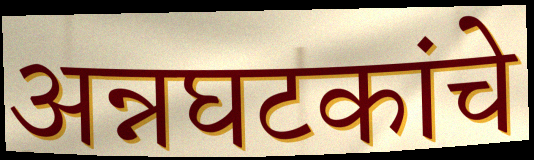
अन्नघटकांचे